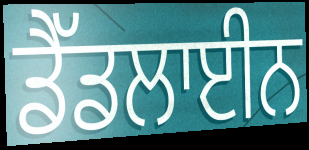
ਡੈੱਡਲਾਈਨ